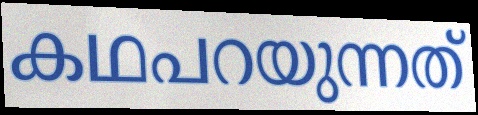
കഥപറയുന്നത്